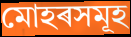
মোহৰসমূহ